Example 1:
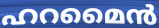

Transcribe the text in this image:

ഹറമൈൻ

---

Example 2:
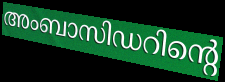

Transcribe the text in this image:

അംബാസിഡറിന്റെ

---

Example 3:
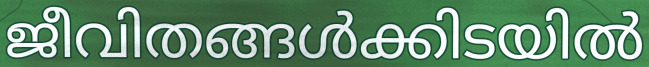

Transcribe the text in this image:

ജീവിതങ്ങൾക്കിടയിൽ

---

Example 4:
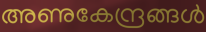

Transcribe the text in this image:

അണുകേന്ദ്രങ്ങൾ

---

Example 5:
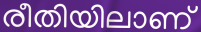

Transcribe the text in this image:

രീതിയിലാണ്